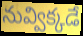
నువ్విక్కడే